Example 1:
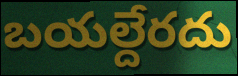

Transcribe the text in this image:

బయల్దేరదు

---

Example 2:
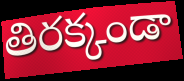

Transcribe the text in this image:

తిరక్కండా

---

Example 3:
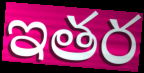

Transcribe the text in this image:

ఇతర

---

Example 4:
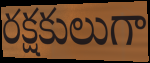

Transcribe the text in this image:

రక్షకులుగా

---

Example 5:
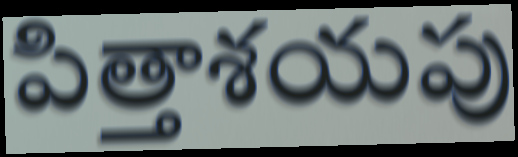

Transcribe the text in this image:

పిత్తాశయపు